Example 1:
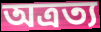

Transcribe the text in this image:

অত্রত্য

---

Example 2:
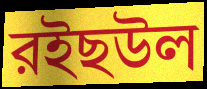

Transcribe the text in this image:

রইছউল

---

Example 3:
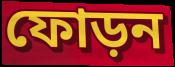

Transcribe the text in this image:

ফোড়ন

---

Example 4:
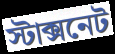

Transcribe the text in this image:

স্টাক্সনেট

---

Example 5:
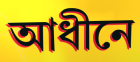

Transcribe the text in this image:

আধীনে